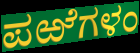
ಪಱೆಗಳಂ